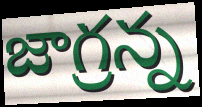
జాగ్రన్న